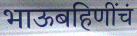
भाऊबहिणींचं